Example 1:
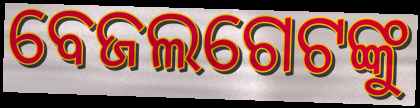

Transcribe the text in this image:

ବେଜଲଗେଟଙ୍କୁ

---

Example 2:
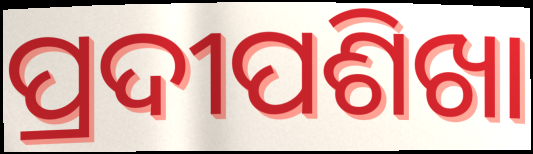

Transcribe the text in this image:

ପ୍ରଦୀପଶିଖା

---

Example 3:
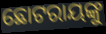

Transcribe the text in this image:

ଛୋଟରାୟଙ୍କୁ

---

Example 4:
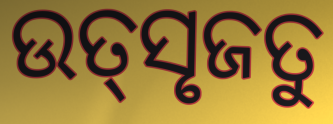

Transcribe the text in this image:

ଉତ୍‌ସୃଜତୁ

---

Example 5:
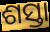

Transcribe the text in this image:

ଶସ୍ତା